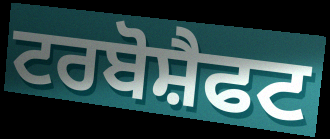
ਟਰਬੋਸ਼ੈਫਟ